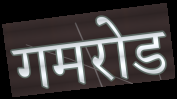
गमरोड